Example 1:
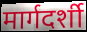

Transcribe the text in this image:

मार्गदर्शी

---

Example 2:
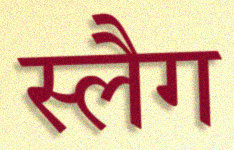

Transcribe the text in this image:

स्लैग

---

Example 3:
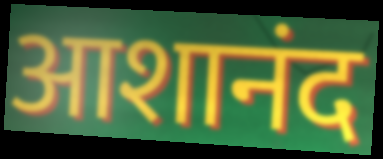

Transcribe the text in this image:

आशानंद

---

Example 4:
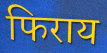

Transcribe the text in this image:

फिराय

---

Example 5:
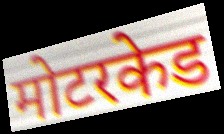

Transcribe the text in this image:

मोटरकेड